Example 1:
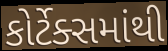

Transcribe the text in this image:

કોર્ટેક્સમાંથી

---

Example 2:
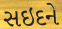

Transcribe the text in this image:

સઇદને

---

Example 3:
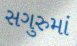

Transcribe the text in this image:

સગુરુમાં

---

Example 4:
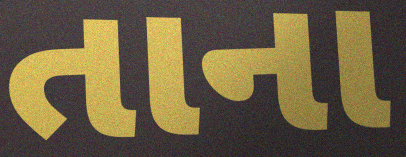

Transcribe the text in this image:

તાના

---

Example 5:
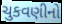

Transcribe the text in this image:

ચુકવણીનો